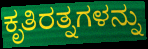
ಕೃತಿರತ್ನಗಳನ್ನು